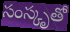
సంస్కృతో